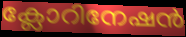
ക്ലോറിനേഷൻ